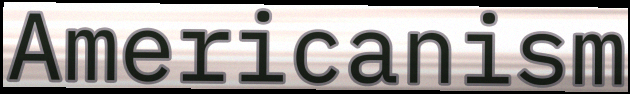
Americanism